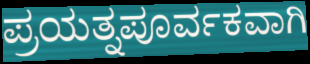
ಪ್ರಯತ್ನಪೂರ್ವಕವಾಗಿ